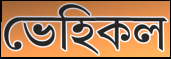
ভেহিকল